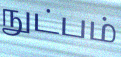
நுட்பம்